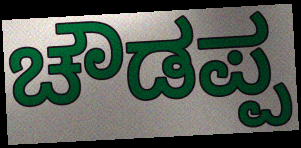
ಚೌಡಪ್ಪ